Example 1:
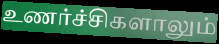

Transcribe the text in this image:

உணர்ச்சிகளாலும்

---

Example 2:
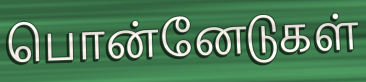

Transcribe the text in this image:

பொன்னேடுகள்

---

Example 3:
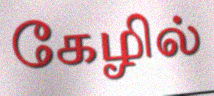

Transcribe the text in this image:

கேழில்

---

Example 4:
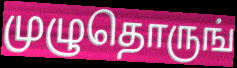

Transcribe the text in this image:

முழுதொருங்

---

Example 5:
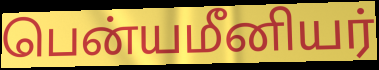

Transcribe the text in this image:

பென்யமீனியர்